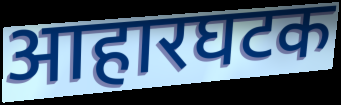
आहारघटक